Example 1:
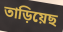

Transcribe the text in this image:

তাড়িয়েছ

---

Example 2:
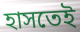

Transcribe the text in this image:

হাসতেই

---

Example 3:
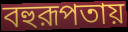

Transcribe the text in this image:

বহুরূপতায়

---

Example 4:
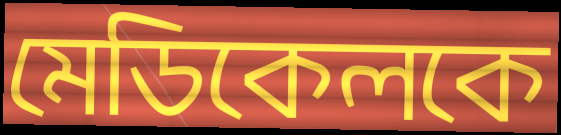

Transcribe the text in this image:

মেডিকেলকে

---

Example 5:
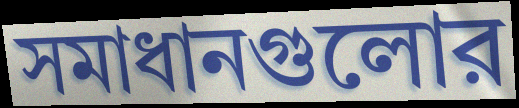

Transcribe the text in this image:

সমাধানগুলোর